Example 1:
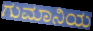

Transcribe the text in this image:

ಗುಮಾನಿಯ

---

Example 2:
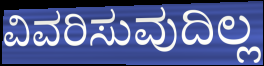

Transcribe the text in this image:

ವಿವರಿಸುವುದಿಲ್ಲ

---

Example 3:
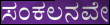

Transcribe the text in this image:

ಸಂಕಲನವೇ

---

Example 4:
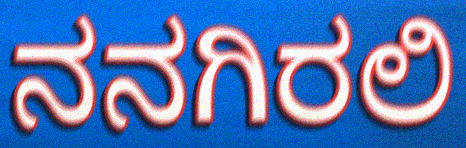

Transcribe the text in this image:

ನನಗಿರಲಿ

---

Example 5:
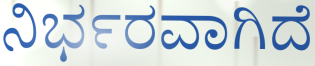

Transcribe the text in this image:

ನಿರ್ಭರವಾಗಿದೆ